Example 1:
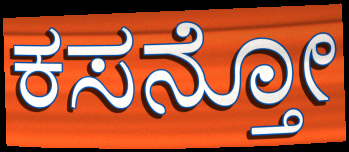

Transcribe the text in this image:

ಕಸನ್ತೋ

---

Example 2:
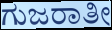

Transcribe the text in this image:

ಗುಜರಾತೀ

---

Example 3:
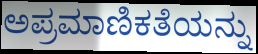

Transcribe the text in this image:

ಅಪ್ರಮಾಣಿಕತೆಯನ್ನು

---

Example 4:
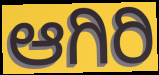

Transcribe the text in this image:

ಆಗಿರಿ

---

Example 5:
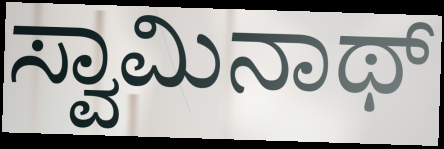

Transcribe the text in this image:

ಸ್ವಾಮಿನಾಥ್